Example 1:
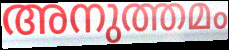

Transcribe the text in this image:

അനുത്തമം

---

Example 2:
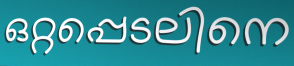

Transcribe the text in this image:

ഒറ്റപ്പെടലിനെ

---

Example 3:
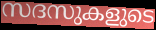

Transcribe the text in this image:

സദസുകളുടെ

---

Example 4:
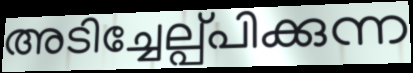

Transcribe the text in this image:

അടിച്ചേല്പ്പിക്കുന്ന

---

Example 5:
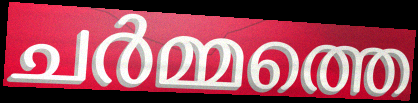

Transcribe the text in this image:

ചർമ്മത്തെ